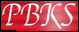
PBKS